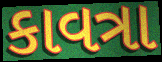
કાવત્રા